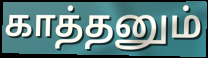
காத்தனும்